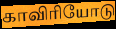
காவிரியோடு